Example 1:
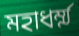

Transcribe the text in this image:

মহাধর্ম্ম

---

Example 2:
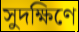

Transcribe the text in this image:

সুদক্ষিণে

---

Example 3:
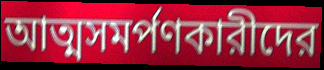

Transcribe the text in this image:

আত্মসমর্পণকারীদের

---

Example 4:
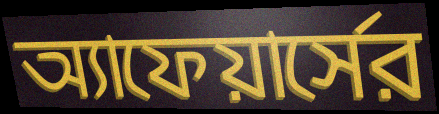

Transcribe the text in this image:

অ্যাফেয়ার্সের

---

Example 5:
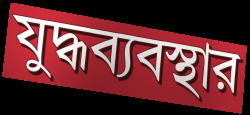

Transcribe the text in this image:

যুদ্ধব্যবস্থার